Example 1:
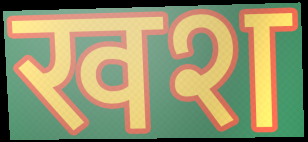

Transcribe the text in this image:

खश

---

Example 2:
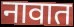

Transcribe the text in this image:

नावात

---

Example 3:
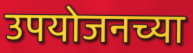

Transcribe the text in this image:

उपयोजनच्या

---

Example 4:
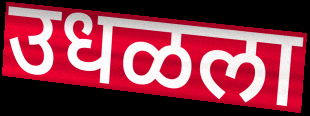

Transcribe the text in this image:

उधळला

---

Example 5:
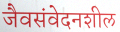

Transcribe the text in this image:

जैवसंवेदनशील